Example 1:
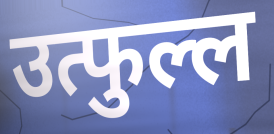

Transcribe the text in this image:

उत्फुल्ल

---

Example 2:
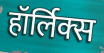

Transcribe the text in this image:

हॉर्लिक्‍स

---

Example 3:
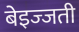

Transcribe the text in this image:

बेइज्‍जती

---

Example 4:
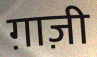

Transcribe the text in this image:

ग़ाज़ी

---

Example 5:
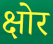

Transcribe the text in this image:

क्षोर